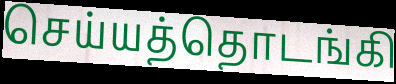
செய்யத்தொடங்கி